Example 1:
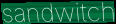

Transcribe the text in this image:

sandwitch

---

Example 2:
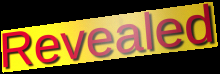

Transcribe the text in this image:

Revealed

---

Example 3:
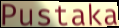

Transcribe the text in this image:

Pustaka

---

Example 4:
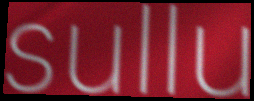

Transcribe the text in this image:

sullu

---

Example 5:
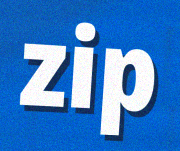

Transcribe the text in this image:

zip